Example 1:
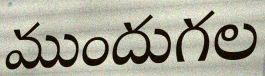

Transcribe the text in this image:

ముందుగల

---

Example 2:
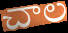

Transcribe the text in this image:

చాల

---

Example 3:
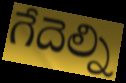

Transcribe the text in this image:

గేదెల్ని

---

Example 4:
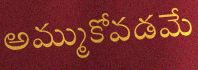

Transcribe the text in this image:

అమ్ముకోవడమే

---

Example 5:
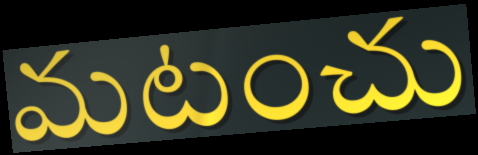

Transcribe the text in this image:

మటంచు